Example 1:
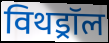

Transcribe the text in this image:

विथड्रॉल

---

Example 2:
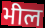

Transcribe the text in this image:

भील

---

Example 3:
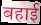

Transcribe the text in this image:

बहाई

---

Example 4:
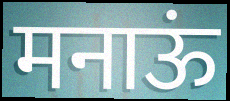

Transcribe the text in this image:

मनाऊं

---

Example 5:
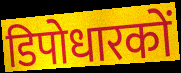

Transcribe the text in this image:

डिपोधारकों